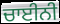
ਚਾਈਨੀ